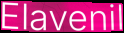
Elavenil